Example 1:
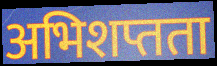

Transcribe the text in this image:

अभिशप्तता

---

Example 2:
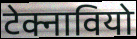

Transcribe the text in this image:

टेक्नावियो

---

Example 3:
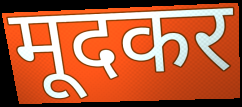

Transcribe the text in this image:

मूदकर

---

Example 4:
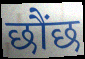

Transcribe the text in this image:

छौंछ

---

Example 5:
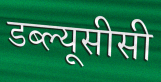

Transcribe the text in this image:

डब्ल्यूसीसी